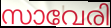
സാവേരി